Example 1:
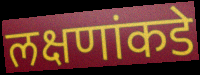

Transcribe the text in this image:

लक्षणांकडे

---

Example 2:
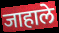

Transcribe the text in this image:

जाहाले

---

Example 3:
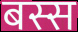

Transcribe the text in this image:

बस्स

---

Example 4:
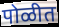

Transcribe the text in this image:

पोळीत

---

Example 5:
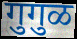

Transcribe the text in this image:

गुगुळ